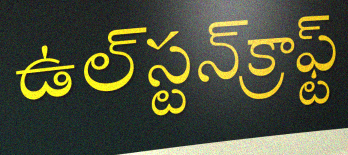
ఉల్‌స్టన్‌క్రాఫ్ట్